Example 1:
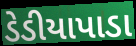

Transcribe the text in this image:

ડેડીયાપાડા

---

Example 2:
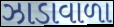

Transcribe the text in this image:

ઝાડાવાળા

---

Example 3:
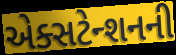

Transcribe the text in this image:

એક્સટેન્શનની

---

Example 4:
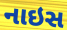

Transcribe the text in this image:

નાઇસ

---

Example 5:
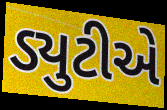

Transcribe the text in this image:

ડ્યુટીએ